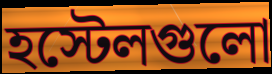
হস্টেলগুলো